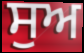
ਸੁਅ